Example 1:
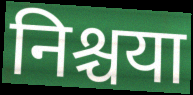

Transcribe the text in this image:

निश्चया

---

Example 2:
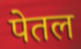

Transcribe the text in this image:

पेतल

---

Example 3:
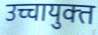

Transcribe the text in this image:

उच्‍चायुक्‍त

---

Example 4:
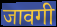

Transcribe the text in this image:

जावगी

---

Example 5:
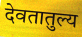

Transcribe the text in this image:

देवतातुल्य